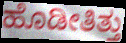
ಹೊಡೀತಿತ್ತು